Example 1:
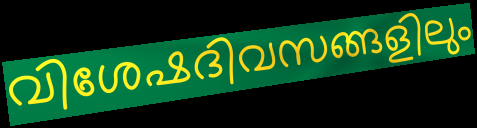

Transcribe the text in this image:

വിശേഷദിവസങ്ങളിലും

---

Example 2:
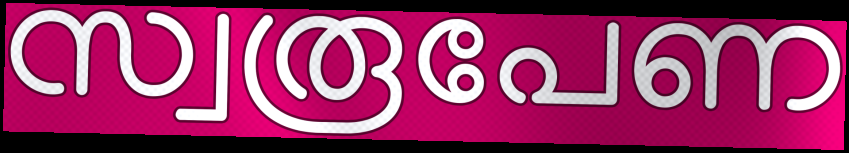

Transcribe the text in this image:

സ്വരൂപേണ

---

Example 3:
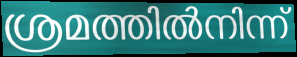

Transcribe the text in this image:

ശ്രമത്തിൽനിന്ന്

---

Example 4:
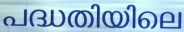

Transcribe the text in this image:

പദ്ധതിയിലെ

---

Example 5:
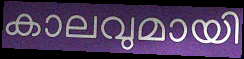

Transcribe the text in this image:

കാലവുമായി